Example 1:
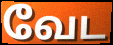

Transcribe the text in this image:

வேட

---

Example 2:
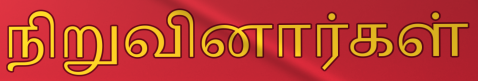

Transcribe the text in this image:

நிறுவினார்கள்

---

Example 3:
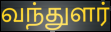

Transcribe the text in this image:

வந்துளர்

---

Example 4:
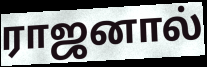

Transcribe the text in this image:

ராஜனால்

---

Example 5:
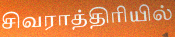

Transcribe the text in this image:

சிவராத்திரியில்